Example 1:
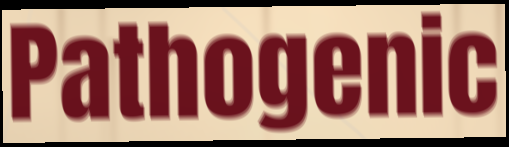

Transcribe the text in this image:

Pathogenic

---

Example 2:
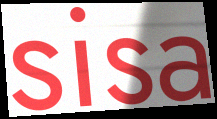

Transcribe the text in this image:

sisa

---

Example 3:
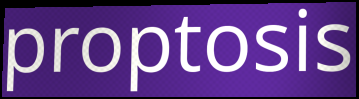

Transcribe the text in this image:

proptosis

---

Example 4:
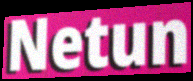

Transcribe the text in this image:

Netun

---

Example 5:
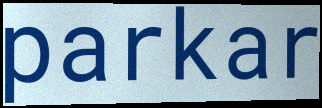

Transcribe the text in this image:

parkar